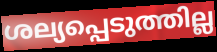
ശല്യപ്പെടുത്തില്ല